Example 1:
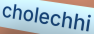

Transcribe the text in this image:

cholechhi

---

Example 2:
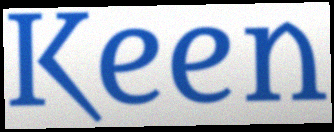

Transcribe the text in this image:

Keen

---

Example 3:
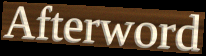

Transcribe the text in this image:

Afterword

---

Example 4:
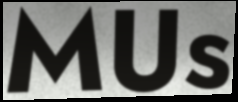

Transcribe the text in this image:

MUs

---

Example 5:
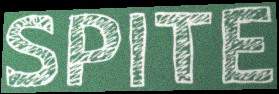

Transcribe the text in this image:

SPITE